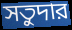
সতুদার